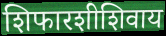
शिफारशीशिवाय